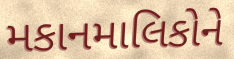
મકાનમાલિકોને